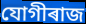
যোগীৰাজ